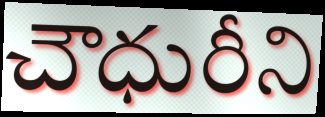
చౌధురీని